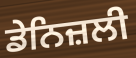
ਡੇਨਿਜ਼ਲੀ